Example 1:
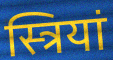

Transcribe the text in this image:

स्त्रियां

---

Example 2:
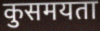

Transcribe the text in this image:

कुसमयता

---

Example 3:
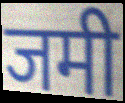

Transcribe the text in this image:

जमी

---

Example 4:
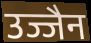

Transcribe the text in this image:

उज्जैन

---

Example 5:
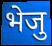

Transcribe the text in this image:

भेजु